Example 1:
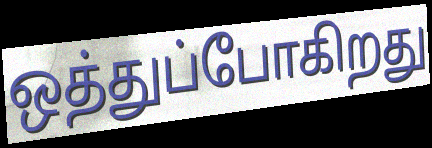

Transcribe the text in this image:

ஒத்துப்போகிறது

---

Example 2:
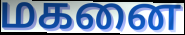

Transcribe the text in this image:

மகனை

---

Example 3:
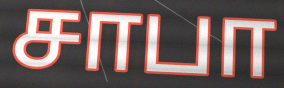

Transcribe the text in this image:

சாபா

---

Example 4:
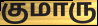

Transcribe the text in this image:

குமாரு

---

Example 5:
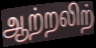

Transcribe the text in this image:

ஆற்றலிற்